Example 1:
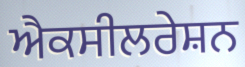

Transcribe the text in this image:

ਐਕਸੀਲਰੇਸ਼ਨ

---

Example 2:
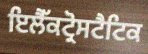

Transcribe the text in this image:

ਇਲੈੱਕਟ੍ਰੋਸਟੈਟਿਕ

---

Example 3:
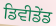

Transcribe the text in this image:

ਡਿਵੀਡੇਂਡ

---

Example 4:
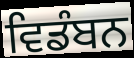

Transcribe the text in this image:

ਵਿਡੰਬਨ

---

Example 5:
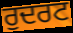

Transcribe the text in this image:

ਰੁਦਰਟ